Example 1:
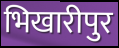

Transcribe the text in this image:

भिखारीपुर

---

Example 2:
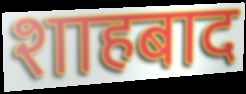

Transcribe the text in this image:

शाहबाद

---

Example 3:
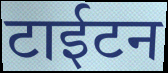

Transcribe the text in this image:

टाईटन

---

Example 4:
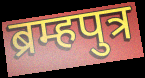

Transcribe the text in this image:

ब्रम्हपुत्र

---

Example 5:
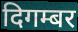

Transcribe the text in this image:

दिगम्बर